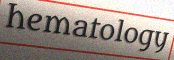
hematology